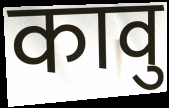
कावु